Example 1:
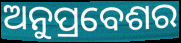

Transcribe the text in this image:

ଅନୁପ୍ରବେଶର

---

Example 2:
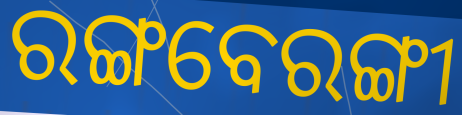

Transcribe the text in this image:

ରଙ୍ଗବେରଙ୍ଗୀ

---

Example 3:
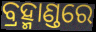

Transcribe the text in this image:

ବ୍ରହ୍ମାଣ୍ଡରେ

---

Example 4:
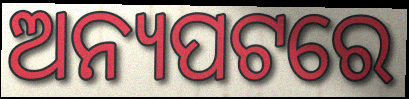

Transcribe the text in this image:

ଅନ୍ୟପଟରେ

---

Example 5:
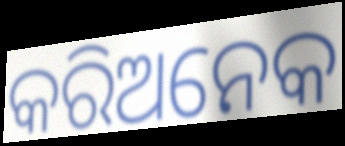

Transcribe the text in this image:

କରିଅନେକ